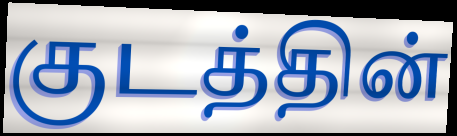
குடத்தின்